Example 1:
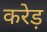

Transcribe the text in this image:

करेड़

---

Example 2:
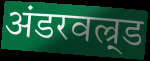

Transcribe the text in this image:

अंडरवल्र्ड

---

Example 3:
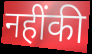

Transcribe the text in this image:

नहींकी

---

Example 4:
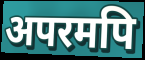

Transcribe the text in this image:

अपरमपि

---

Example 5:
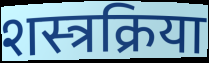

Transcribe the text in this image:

शस्त्रक्रिया